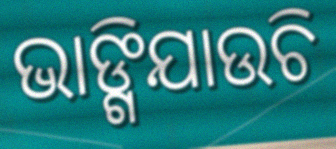
ଭାଙ୍ଗିଯାଉଚି